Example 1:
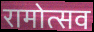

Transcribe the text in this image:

रामोत्सव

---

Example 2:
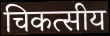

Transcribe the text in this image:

चिकत्सीय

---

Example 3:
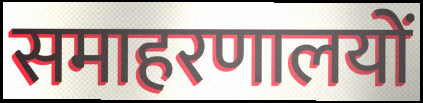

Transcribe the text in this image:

समाहरणालयों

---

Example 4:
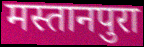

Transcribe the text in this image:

मस्तानपुरा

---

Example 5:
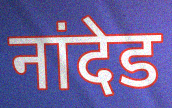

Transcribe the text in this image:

नांदेड